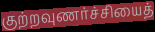
குற்றவுணர்ச்சியைத்